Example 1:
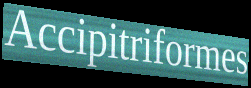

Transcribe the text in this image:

Accipitriformes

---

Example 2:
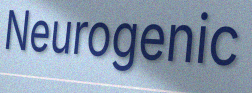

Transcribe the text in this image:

Neurogenic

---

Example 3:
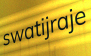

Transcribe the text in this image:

swatijraje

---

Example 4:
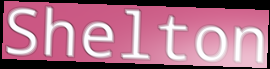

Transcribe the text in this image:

Shelton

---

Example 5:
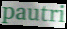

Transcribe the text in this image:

pautri